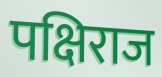
पक्षिराज